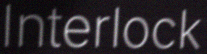
Interlock